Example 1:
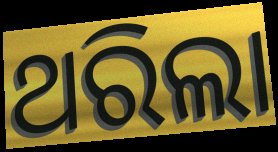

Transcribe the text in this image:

ଥରିଲା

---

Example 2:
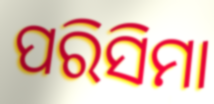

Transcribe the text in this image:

ପରିସିମା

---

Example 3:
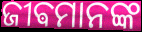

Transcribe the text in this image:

ଜୀଵମାନଙ୍କ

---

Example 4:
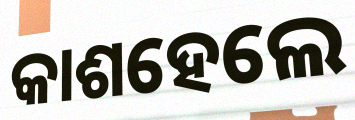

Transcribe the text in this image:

କାଶହେଲେ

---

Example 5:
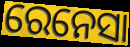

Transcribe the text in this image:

ରେନେସା